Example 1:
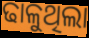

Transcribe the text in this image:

ଢାଳୁଥିଲା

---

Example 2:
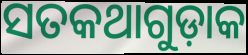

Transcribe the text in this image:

ସତକଥାଗୁଡ଼ାକ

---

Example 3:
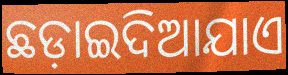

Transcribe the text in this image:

ଛଡ଼ାଇଦିଆଯାଏ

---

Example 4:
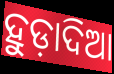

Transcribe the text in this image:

ହୁଡ଼ାଦିଆ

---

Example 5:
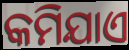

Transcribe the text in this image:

କମିଯାଏ